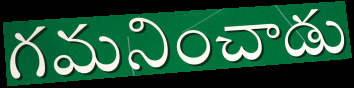
గమనించాడు